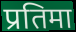
प्रतिमा